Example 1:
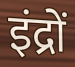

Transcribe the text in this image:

इंद्रों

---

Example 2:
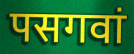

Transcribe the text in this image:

पसगवां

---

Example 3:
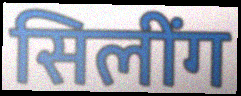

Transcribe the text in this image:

सिलींग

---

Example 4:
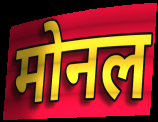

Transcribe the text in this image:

मोनल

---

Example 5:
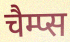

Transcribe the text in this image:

चैम्प्स